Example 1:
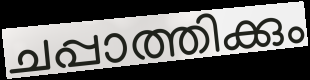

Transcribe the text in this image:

ചപ്പാത്തിക്കും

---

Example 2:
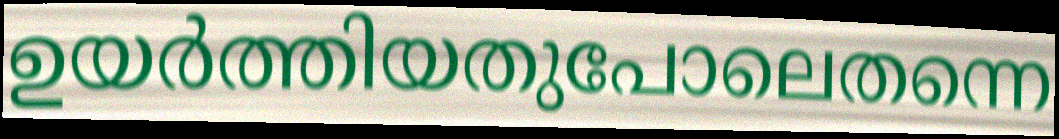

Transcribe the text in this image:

ഉയർത്തിയതുപോലെതന്നെ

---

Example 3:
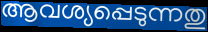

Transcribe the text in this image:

ആവശ്യപ്പെടുന്നതു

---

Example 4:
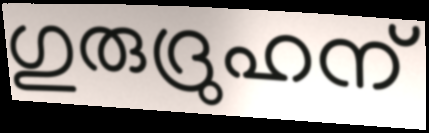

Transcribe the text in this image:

ഗുരുദ്രുഹന്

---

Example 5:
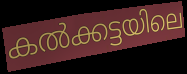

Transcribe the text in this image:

കൽക്കട്ടയിലെ